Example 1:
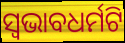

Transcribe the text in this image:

ସ୍ଵଭାବଧର୍ମଟି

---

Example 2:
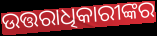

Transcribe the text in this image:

ଉତ୍ତରାଧିକାରୀଙ୍କର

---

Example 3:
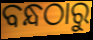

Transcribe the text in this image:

ବନ୍ଧଠାରୁ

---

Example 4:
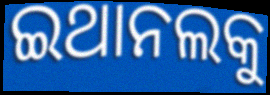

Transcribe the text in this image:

ଇଥାନଲକୁ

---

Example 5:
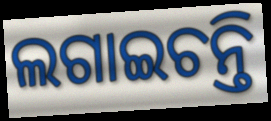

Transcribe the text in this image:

ଲଗାଇଚନ୍ତି